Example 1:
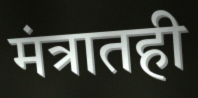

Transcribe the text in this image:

मंत्रातही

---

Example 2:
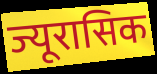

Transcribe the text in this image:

ज्यूरासिक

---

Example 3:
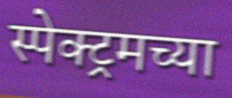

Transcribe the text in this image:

स्पेक्ट्रमच्या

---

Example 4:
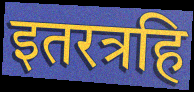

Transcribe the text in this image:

इतरत्रहि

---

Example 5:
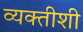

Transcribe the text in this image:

व्यक्‍तीशी